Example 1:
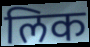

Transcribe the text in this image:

लिक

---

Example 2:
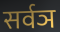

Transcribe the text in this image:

सर्वञ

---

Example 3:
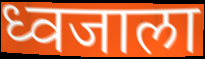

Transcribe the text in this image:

ध्वजाला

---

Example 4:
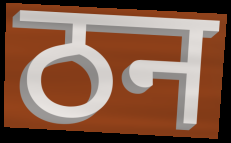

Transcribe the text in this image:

ठन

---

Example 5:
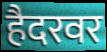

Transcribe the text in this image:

हैदरवर